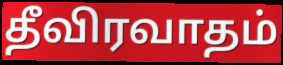
தீவிரவாதம்